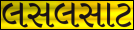
લસલસાટ